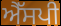
ਐੱਸਪੀ